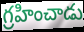
గ్రహించాడు